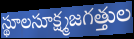
స్థూలసూక్ష్మజగత్తుల